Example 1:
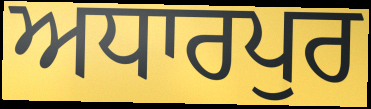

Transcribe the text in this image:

ਅਧਾਰਪੁਰ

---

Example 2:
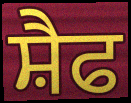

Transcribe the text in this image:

ਸ਼ੈਫ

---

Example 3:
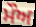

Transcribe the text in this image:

ਮੌਅ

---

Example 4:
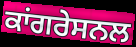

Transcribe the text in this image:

ਕਾਂਗਰੇਸਨਲ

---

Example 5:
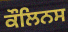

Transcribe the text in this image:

ਕੌਲਿਨਸ